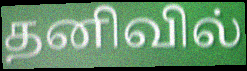
தனிவில்